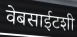
वेबसाईटशी